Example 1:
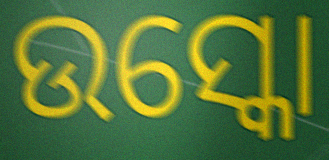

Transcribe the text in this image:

ଉସ୍କୋ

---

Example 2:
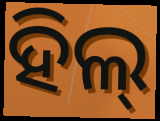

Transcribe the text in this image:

ହିଲ୍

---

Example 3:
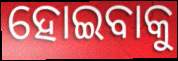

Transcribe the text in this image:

ହୋଇବାକୁ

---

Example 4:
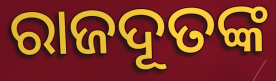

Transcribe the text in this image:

ରାଜଦୂତଙ୍କ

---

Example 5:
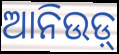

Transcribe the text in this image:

ଆନିଉଡ଼୍